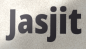
Jasjit